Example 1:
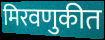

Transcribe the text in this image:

मिरवणुकीत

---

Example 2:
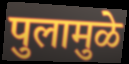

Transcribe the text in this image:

पुलामुळे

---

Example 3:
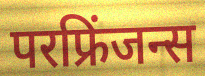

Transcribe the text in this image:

परफ्रिंजन्स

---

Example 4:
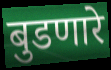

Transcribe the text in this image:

बुडणारे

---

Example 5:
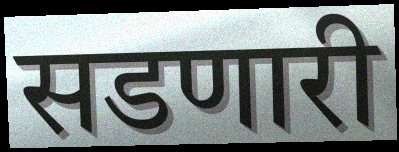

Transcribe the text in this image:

सडणारी